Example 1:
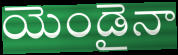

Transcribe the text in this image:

యెండైనా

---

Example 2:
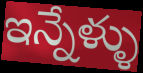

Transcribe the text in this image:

ఇన్నేళ్ళు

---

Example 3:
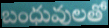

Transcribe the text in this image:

బంధువులతో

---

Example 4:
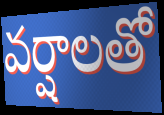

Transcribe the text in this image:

వర్షాలతో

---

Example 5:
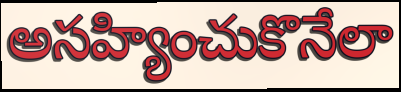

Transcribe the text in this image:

అసహ్యించుకొనేలా